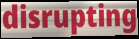
disrupting